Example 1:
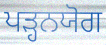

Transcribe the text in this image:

ਪੜ੍ਹਨਯੋਗ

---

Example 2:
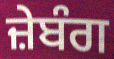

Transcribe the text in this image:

ਜ਼ੇਬੰਗ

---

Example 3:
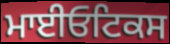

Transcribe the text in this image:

ਮਾਈਓਟਿਕਸ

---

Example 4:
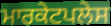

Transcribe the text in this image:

ਮਾਰਕੇਟਪਲੇਸ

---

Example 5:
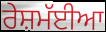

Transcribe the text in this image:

ਰੇਸ਼ਮੱਈਆ